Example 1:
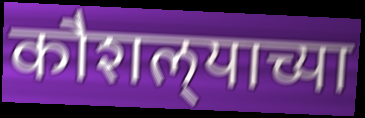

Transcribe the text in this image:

कौशल्याच्या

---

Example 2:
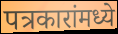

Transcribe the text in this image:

पत्रकारांमध्ये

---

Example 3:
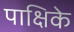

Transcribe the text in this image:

पाक्षिके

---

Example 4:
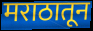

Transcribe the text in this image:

मराठातून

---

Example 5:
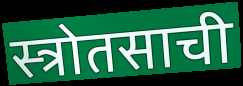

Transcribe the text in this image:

स्त्रोतसाची